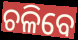
ଚଳିବେ